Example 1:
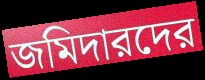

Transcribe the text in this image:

জমিদারদের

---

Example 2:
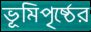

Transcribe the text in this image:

ভূমিপৃষ্ঠের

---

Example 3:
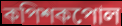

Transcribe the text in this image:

কপিশকপোল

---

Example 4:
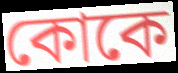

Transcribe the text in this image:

কোকে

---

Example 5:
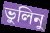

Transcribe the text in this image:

ভুলিনু